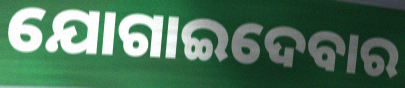
ଯୋଗାଇଦେବାର